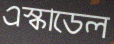
এস্কাডেল